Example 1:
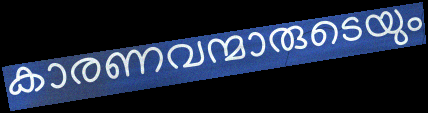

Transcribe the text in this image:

കാരണവന്മാരുടെയും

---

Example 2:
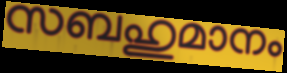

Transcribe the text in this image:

സബഹുമാനം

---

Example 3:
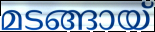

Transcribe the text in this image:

മടങ്ങായ്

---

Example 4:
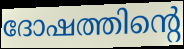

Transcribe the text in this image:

ദോഷത്തിന്റെ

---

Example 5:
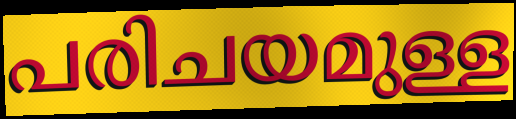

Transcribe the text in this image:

പരിചയമുള്ള